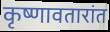
कृष्णावतारांत